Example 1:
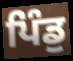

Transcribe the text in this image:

ਪਿੰਡੁ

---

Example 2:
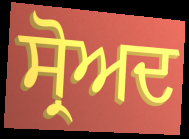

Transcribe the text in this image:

ਸ੍ਰੋਅਦ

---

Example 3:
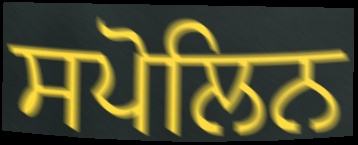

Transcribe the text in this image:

ਸਪੋਲਿਨ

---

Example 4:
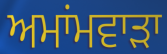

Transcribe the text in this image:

ਅਮਾਂਮਵਾੜਾ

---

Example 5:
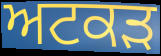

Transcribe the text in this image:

ਅਟਕੜ